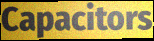
Capacitors